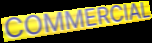
COMMERCIAL